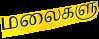
மலைகளு